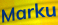
Marku